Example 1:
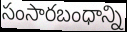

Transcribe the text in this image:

సంసారబంధాన్ని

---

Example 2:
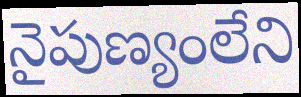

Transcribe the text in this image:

నైపుణ్యంలేని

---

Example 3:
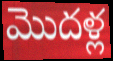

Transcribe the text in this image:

మొదళ్ల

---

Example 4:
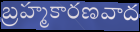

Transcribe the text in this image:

బ్రహ్మకారణవాద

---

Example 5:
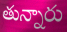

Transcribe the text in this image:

తున్నారు